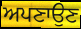
ਅਪਣਾਉਣ